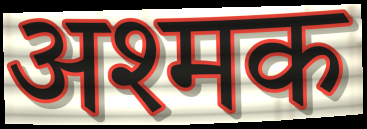
अश्मक